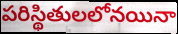
పరిస్థితులలోనయినా